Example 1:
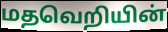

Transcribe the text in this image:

மதவெறியின்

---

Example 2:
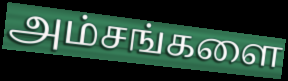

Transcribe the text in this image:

அம்சங்களை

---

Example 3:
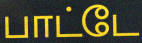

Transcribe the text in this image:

பாட்டே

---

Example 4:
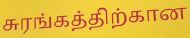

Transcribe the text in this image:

சுரங்கத்திற்கான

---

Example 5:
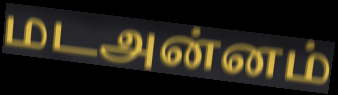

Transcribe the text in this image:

மடஅன்னம்